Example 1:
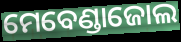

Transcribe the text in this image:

ମେବେଣ୍ଡାଜୋଲ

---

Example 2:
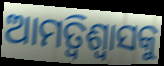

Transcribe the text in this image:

ଆମତ୍ବିଶ୍ୱାସକୁ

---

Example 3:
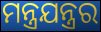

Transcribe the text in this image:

ମନ୍ତ୍ରଯନ୍ତ୍ରର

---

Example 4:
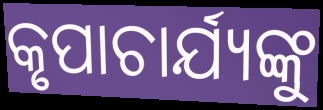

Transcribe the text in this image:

କୃପାଚାର୍ଯ୍ୟଙ୍କୁ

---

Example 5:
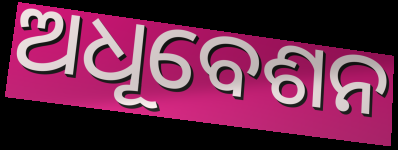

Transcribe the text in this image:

ଅଧୂବେଶନ